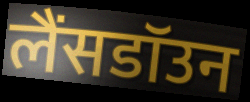
लैंसडॉउन